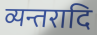
व्यन्तरादि